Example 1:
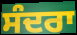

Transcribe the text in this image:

ਸੰਦਰਾ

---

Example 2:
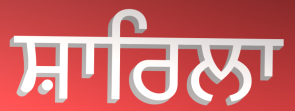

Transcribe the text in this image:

ਸ਼ਾਰਿਲਾ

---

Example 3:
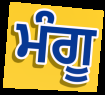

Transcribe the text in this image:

ਮੰਗੂ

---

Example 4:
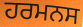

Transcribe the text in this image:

ਹਰਮਨਸ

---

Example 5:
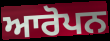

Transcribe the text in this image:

ਆਰੋਪਨ